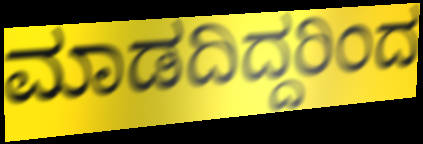
ಮಾಡದಿದ್ದರಿಂದ